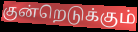
குன்றெடுக்கும்